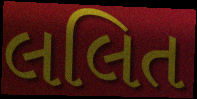
લલિત